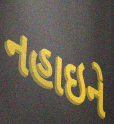
નહાઇને